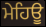
ਮੇਹਿਊ